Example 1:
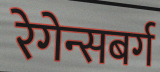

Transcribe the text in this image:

रेगेन्सबर्ग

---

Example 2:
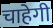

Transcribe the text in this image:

चाहेगी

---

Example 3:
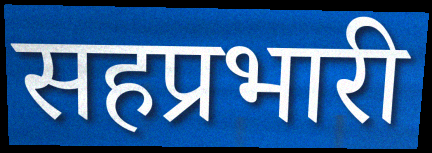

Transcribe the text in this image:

सहप्रभारी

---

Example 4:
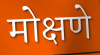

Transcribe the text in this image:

मोक्षणे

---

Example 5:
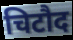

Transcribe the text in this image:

चिटौद